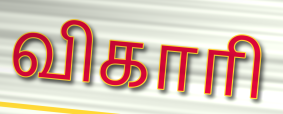
விகாரி